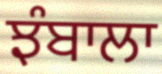
ਝੰਬਾਲਾ